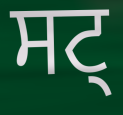
ਸਟ੍